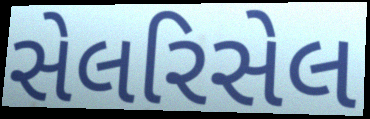
સેલરિસેલ